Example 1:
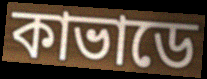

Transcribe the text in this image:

কাভাডে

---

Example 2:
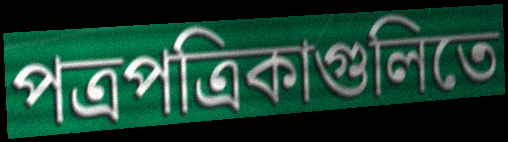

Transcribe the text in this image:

পত্রপত্রিকাগুলিতে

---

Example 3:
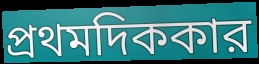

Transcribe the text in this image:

প্রথমদিককার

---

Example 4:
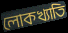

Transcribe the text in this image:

লোকখ্যাতি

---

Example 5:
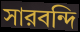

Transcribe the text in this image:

সারবন্দি